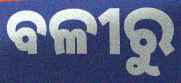
ବଳୀରୁ